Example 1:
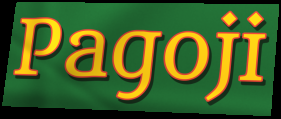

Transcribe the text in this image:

Pagoji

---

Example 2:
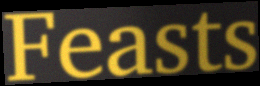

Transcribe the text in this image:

Feasts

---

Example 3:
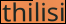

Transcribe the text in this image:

thilisi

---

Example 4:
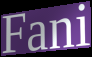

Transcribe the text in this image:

Fani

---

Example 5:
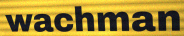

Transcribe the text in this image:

wachman